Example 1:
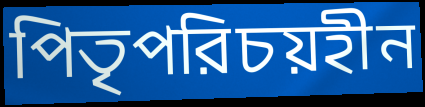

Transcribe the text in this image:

পিতৃপরিচয়হীন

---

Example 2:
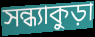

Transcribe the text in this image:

সন্ধ্যাকুড়া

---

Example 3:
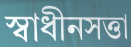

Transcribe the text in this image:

স্বাধীনসত্তা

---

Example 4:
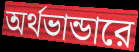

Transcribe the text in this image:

অর্থভান্ডারে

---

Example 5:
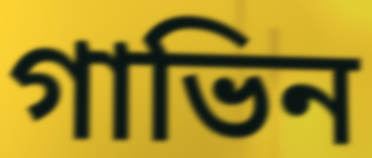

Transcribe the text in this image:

গাভিন